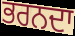
ਭਰਨਦਾ